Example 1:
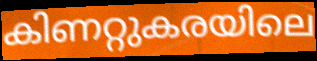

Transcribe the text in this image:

കിണറ്റുകരയിലെ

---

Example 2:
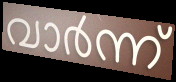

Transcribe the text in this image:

വാർന്ന്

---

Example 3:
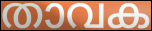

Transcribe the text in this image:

താവക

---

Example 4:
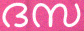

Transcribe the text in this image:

ദസ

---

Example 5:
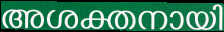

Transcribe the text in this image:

അശക്തനായി